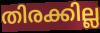
തിരക്കില്ല